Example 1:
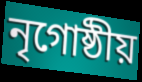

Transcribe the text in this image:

নৃগোষ্ঠীয়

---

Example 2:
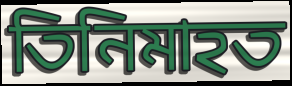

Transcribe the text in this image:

তিনিমাহত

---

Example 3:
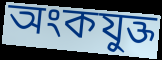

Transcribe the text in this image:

অংকযুক্ত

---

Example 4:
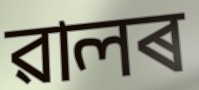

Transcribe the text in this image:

ৱালৰ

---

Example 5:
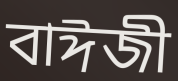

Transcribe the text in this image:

বাঈজী